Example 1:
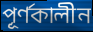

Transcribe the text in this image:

পূৰ্ণকালীন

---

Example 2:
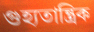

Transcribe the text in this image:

গুহ্যতান্ত্ৰিক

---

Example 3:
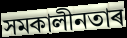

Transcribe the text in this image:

সমকালীনতাৰ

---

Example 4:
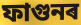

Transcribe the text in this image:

ফাগুনৰ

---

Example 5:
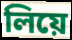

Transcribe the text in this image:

লিয়ে